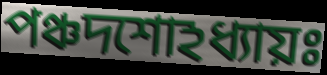
পঞ্চদশোঽধ্যায়ঃ